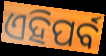
ଏହିପର୍ବ